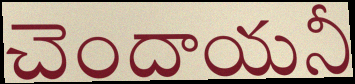
చెందాయనీ